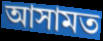
আসামত